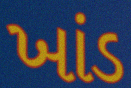
ખાંડ